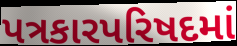
પત્રકારપરિષદમાં